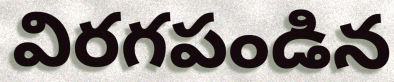
విరగపండిన